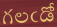
గలఁడో